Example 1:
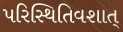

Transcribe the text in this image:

પરિસ્થિતિવશાત્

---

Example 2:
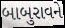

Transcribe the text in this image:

બાબુરાવને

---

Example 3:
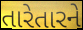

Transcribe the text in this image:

તારેતારને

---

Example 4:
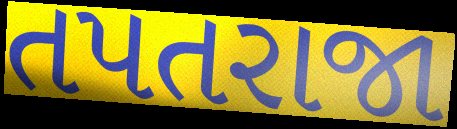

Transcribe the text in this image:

તપતરાજા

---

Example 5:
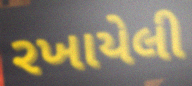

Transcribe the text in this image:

રખાયેલી